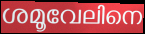
ശമൂവേലിനെ